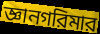
জ্ঞানগরিমার